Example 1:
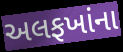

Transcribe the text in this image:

અલફખાંના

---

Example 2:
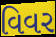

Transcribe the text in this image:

વિવર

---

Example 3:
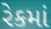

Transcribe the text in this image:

રેકમાં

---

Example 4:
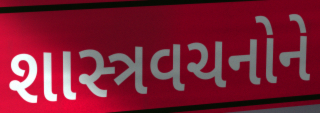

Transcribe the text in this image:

શાસ્ત્રવચનોને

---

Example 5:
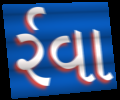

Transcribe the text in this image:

ર્રવા